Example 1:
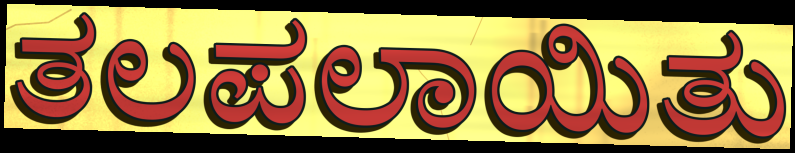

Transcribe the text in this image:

ತಲಪಲಾಯಿತು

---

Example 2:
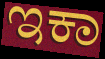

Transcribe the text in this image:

ಇಕಾ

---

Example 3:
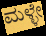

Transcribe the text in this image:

ಮಳ್ಳೇ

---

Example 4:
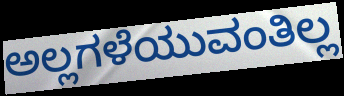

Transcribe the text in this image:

ಅಲ್ಲಗಳೆಯುವಂತಿಲ್ಲ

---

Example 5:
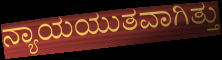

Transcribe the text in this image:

ನ್ಯಾಯಯುತವಾಗಿತ್ತು